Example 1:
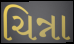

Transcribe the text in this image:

ચિન્ના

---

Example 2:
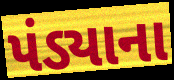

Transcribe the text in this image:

પંડ્યાના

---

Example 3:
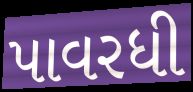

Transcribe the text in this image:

પાવરધી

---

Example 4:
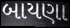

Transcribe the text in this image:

બાયણા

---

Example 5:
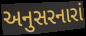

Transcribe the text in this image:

અનુસરનારાં